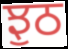
ਝੁਠ